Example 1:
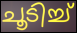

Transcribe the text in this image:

ചൂടിച്ച്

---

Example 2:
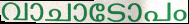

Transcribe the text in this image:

വാചാടോപം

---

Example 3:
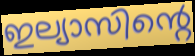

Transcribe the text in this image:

ഇല്യാസിന്റെ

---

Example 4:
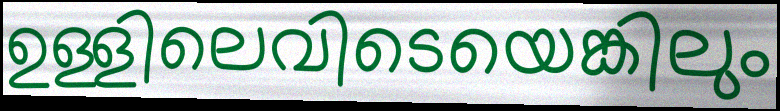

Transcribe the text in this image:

ഉള്ളിലെവിടെയെങ്കിലും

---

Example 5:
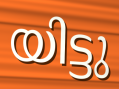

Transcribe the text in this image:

യിട്ടു